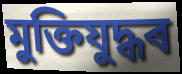
মুক্তিযুদ্ধৰ